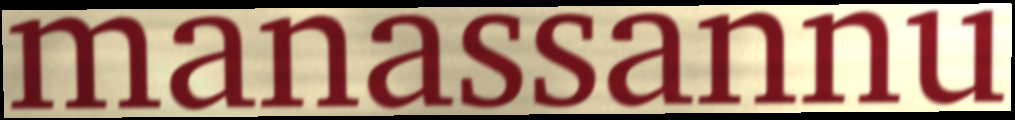
manassannu